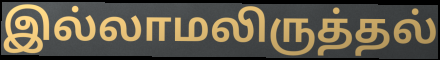
இல்லாமலிருத்தல்